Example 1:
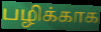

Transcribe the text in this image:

பழிக்காக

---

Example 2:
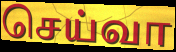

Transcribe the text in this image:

செய்வா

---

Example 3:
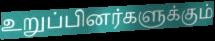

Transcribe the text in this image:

உறுப்பினர்களுக்கும்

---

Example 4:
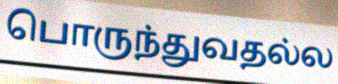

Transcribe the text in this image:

பொருந்துவதல்ல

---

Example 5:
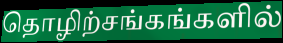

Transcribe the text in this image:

தொழிற்சங்கங்களில்